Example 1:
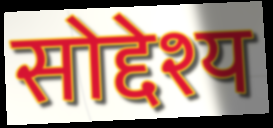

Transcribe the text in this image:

सोद्देश्य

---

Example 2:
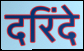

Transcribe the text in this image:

दरिंदे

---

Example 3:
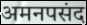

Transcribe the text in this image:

अमनपसंद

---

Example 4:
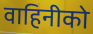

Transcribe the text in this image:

वाहिनीको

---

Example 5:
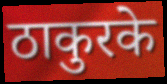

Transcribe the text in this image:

ठाकुरके